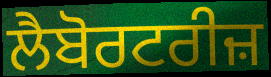
ਲੈਬੋਰਟਰੀਜ਼